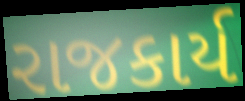
રાજકાર્ય